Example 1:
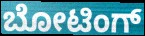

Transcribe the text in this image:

ಬೋಟಿಂಗ್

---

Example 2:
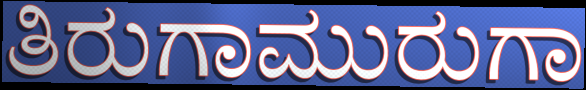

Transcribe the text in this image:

ತಿರುಗಾಮುರುಗಾ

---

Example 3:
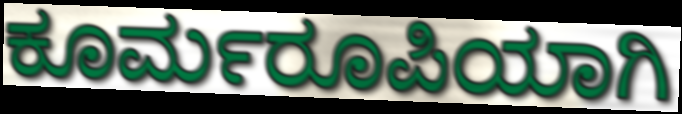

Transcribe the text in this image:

ಕೂರ್ಮರೂಪಿಯಾಗಿ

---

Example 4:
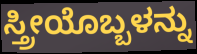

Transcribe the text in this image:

ಸ್ತ್ರೀಯೊಬ್ಬಳನ್ನು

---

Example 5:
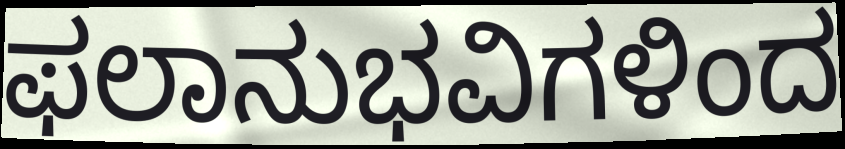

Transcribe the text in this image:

ಫಲಾನುಭವಿಗಳಿಂದ